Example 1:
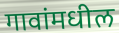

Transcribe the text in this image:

गावांमधील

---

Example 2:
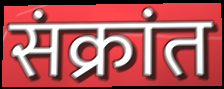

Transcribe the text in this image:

संक्रांत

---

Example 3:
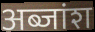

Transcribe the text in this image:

अब्जांश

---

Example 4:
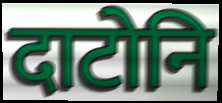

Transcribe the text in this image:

दाटोनि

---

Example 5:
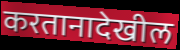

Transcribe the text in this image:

करतानादेखील